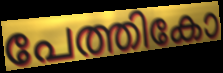
പേത്തികോ